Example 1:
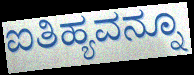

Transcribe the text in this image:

ಐತಿಹ್ಯವನ್ನೂ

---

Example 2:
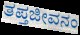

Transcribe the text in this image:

ತಪ್ತಜೀವನಂ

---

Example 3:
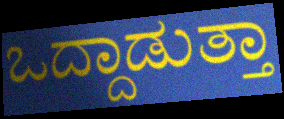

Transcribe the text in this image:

ಒದ್ದಾಡುತ್ತಾ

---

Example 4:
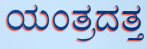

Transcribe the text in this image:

ಯಂತ್ರದತ್ತ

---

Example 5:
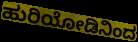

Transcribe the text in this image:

ಹುರಿಯೋಡಿನಿಂದ